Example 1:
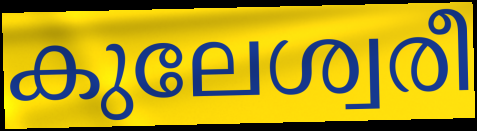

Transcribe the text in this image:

കുലേശ്വരീ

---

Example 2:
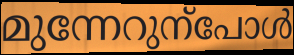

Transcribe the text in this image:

മുന്നേറുന്പോൾ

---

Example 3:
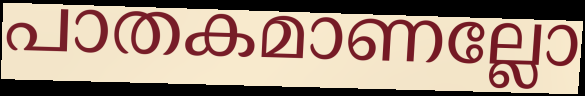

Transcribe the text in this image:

പാതകമാണല്ലോ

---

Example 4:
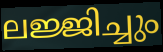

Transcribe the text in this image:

ലജ്ജിച്ചും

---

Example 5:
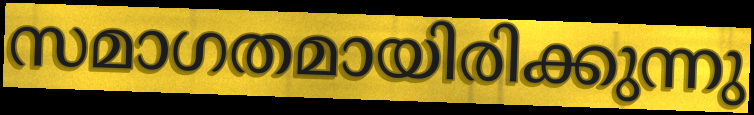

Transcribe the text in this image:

സമാഗതമായിരിക്കുന്നു